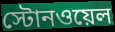
স্টোনওয়েল